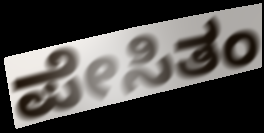
ಪೇಸಿತಂ